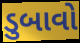
ડુબાવો